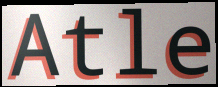
Atle